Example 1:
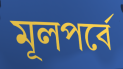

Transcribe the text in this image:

মূলপর্বে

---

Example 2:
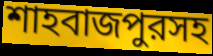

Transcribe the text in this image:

শাহবাজপুরসহ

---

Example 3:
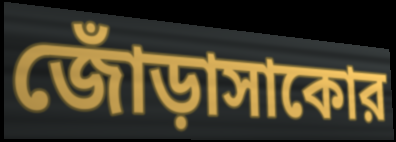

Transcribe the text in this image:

জোঁড়াসাকোর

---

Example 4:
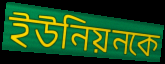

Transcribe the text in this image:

ইউনিয়নকে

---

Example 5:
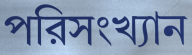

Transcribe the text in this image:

পরিসংখ্য়ান